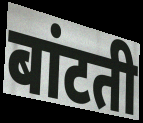
बांटती